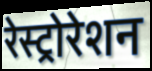
रेस्ट्रोरेशन